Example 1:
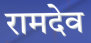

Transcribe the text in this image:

रामदेव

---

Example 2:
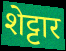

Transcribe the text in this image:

शेट्टार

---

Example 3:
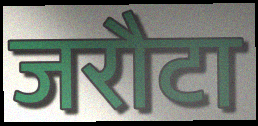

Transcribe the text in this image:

जरौटा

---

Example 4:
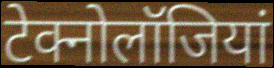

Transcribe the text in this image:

टेक्नोलॉजियां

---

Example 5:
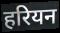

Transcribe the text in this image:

हरियन